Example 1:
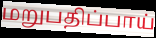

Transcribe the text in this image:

மறுபதிப்பாய்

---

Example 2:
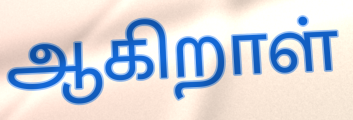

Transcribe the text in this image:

ஆகிறாள்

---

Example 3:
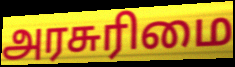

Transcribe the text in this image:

அரசுரிமை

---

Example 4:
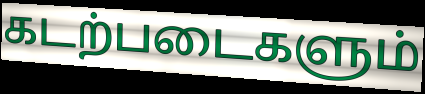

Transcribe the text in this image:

கடற்படைகளும்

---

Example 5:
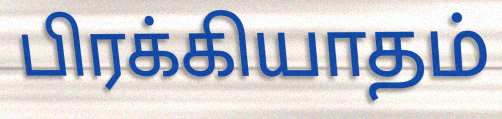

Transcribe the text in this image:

பிரக்கியாதம்